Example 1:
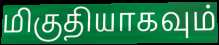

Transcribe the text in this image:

மிகுதியாகவும்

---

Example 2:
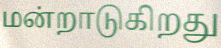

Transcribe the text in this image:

மன்றாடுகிறது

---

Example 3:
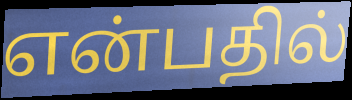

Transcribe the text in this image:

என்பதில்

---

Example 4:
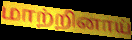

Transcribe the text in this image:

மாற்றினாய்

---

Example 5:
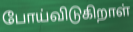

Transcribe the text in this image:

போய்விடுகிறாள்